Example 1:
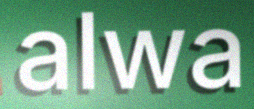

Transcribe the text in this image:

alwa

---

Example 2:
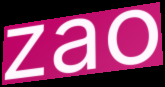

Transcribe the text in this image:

zao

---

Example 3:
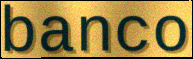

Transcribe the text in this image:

banco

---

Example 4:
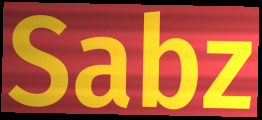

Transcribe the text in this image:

Sabz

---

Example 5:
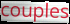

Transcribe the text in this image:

couples